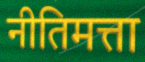
नीतिमत्ता